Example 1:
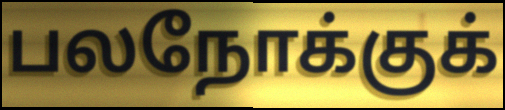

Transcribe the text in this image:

பலநோக்குக்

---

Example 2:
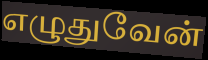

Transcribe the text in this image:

எழுதுவேன்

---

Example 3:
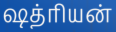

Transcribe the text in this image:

ஷத்ரியன்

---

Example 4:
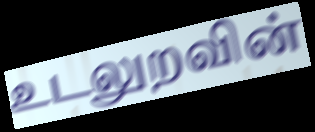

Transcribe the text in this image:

உடலுறவின்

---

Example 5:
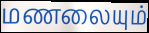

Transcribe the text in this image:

மணலையும்